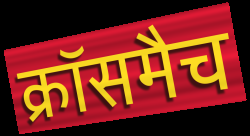
क्रॉसमैच